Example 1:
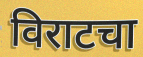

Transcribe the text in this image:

विराटचा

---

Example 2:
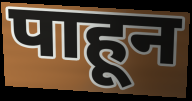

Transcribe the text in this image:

पाहून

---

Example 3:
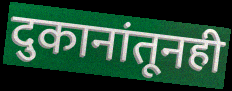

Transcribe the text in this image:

दुकानांतूनही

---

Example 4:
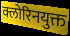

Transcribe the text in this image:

क्लोरिनयुक्त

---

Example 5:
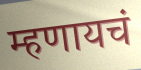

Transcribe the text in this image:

म्हणायचं